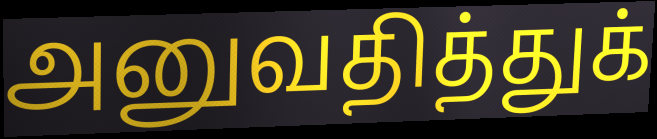
அனுவதித்துக்